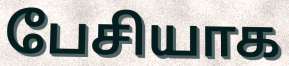
பேசியாக